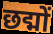
छद्मों